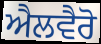
ਐਲਵੈਰੋ